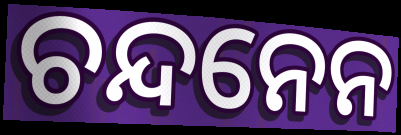
ଚନ୍ଦନେନ